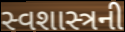
સ્વશાસ્ત્રની